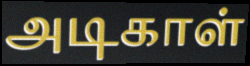
அடிகாள்